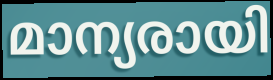
മാന്യരായി